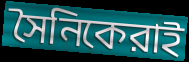
সৈনিকেরাই